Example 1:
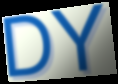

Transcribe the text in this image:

DY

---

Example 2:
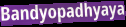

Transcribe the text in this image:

Bandyopadhyaya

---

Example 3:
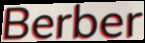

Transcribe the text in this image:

Berber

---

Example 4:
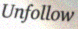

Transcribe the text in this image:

Unfollow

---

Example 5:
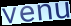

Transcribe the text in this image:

venu